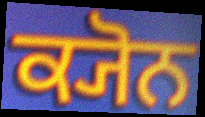
ਕ੍ਯੋਨ